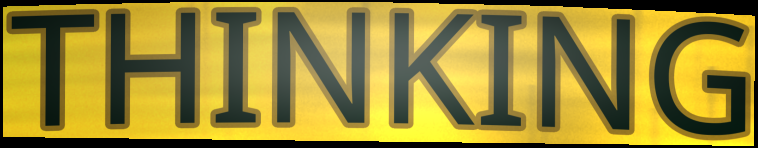
THINKING